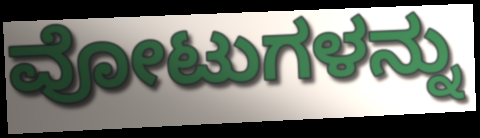
ವೋಟುಗಳನ್ನು